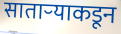
साताऱ्याकडून